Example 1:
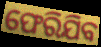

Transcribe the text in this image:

ଫେରିଯିବ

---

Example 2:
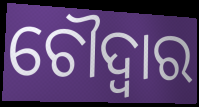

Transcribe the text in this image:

ଚୌଦ୍ବାର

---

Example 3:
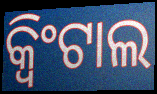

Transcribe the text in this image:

କ୍ୱିଂଟାଲ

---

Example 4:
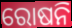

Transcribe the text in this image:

ରୋଷନି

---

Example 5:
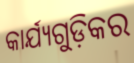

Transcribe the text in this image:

କାର୍ଯ୍ୟଗୁଡ଼ିକର